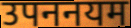
उपननयम